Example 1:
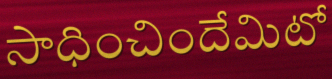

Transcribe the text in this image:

సాధించిందేమిటో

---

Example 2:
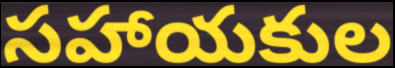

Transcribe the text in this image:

సహాయకుల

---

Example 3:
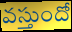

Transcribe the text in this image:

వస్తుందో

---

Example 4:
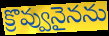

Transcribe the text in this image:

క్రొవ్వునైనను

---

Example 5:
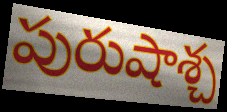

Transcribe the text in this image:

పురుషాశ్చ